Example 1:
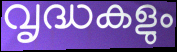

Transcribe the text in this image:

വൃദ്ധകളും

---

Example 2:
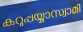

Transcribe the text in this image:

കറുപ്പയ്യാസ്വാമി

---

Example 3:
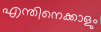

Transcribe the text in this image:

എന്തിനെക്കാളും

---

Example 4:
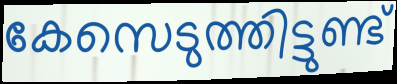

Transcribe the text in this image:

കേസെടുത്തിട്ടുണ്ട്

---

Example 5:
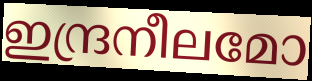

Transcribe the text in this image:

ഇന്ദ്രനീലമോ